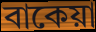
বাকেয়া